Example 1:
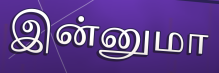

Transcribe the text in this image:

இன்னுமா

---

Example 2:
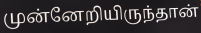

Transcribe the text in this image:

முன்னேறியிருந்தான்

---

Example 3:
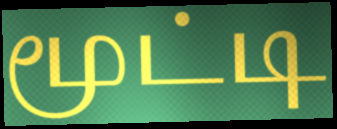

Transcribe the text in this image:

மூட்டி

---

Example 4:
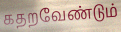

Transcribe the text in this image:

கதறவேண்டும்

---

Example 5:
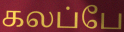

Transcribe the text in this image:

கலப்பே